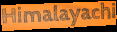
Himalayachi